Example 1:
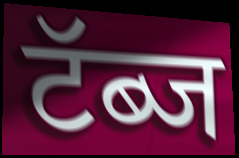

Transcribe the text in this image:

टॅब्ज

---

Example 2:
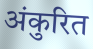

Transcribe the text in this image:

अंकुरित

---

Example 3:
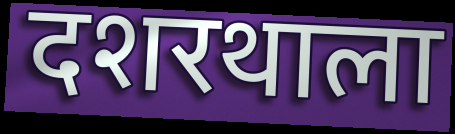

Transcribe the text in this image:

दशरथाला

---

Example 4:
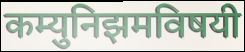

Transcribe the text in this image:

कम्युनिझमविषयी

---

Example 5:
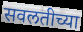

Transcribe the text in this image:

सवलतीच्या